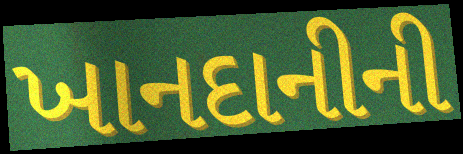
ખાનદાનીની